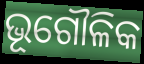
ଭୂଗୌଳିକ